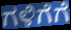
ಗಳಿಗೆಗೆ